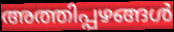
അത്തിപ്പഴങ്ങൾ